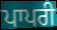
ਪਾਪਰੀ